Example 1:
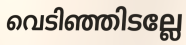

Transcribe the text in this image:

വെടിഞ്ഞിടല്ലേ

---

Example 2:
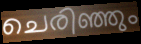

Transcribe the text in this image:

ചെരിഞ്ഞും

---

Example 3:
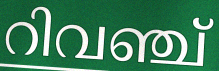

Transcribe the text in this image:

റിവഞ്ച്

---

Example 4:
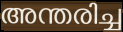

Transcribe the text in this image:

അന്തരിച്ച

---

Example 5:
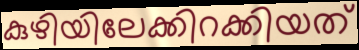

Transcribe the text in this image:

കുഴിയിലേക്കിറക്കിയത്